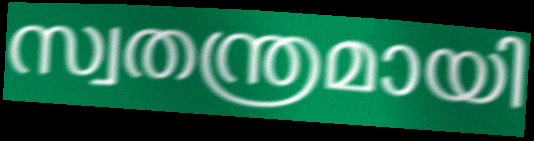
സ്വതന്ത്രമായി